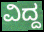
ವಿದ್ದ